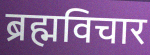
ब्रह्मविचार